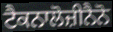
ਟੈਕਨਾਲੋਜ਼ੀਨੈਨੋ